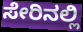
ಸೇರಿನಲ್ಲಿ